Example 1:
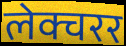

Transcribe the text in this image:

लेक्चरर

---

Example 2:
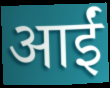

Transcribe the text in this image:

आईं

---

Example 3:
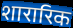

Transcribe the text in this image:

शारारिक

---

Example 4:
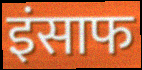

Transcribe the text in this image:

इंसाफ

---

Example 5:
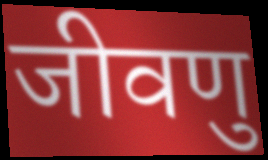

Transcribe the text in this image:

जीवणु